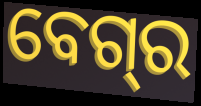
ବେଗ୍‌ର